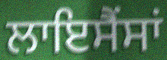
ਲਾਇਸੈਂਸਾਂ